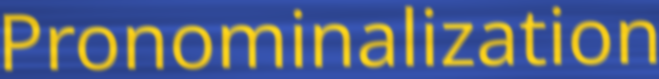
Pronominalization